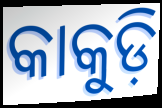
କାକୁଡ଼ି